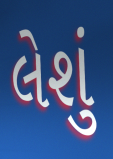
લેશું